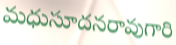
మధుసూదనరావుగారి